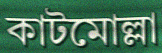
কাটমোল্লা